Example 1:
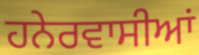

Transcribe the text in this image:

ਹਨੇਰਵਾਸੀਆਂ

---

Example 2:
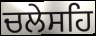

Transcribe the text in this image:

ਚਲੇਸਹਿ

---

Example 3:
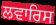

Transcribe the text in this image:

ਲਵਾਰਿਸ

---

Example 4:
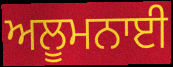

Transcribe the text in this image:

ਅਲੂਮਨਾਈ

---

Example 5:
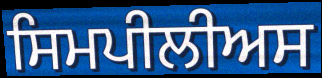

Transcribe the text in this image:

ਸਿਮਪੀਲੀਅਸ